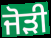
ਜੋਡ਼ੀ